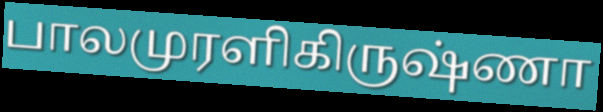
பாலமுரளிகிருஷ்ணா